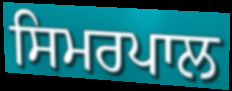
ਸਿਮਰਪਾਲ